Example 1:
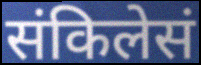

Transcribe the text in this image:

संकिलेसं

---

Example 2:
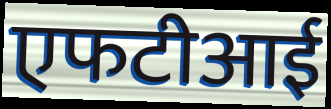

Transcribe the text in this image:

एफटीआई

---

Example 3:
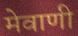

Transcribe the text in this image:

मेवाणी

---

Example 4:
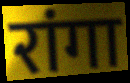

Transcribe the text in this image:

रांगा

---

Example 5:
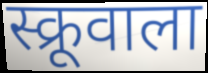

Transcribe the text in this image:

स्क्रूवाला